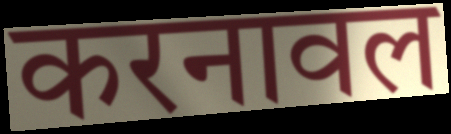
करनावल